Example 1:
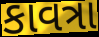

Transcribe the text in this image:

કાવત્રા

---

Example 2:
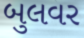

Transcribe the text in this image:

બુલવર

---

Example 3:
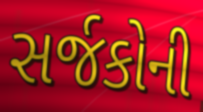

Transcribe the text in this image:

સર્જકોની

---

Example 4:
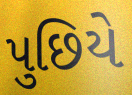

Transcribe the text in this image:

પુછિયે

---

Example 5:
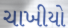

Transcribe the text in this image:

ચાખીયો